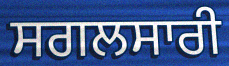
ਸਗਲਸਾਰੀ